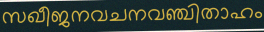
സഖീജനവചനവഞ്ചിതാഹം